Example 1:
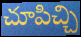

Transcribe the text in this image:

చూపిచ్చి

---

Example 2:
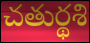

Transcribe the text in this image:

చతుర్థశి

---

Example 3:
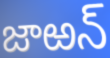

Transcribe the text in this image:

జాఱన్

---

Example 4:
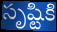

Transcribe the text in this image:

సృష్టికి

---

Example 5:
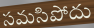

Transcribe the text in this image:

సమసిపోదు